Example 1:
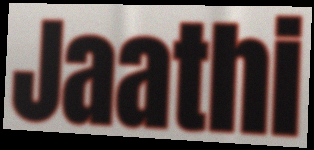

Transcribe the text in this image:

Jaathi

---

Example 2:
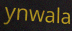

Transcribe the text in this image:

ynwala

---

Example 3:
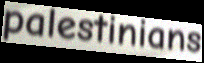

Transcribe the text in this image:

palestinians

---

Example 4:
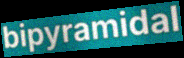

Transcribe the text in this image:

bipyramidal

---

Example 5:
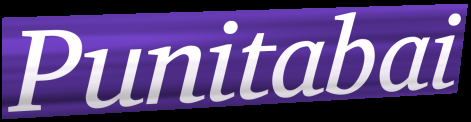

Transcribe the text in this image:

Punitabai